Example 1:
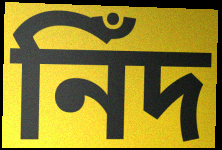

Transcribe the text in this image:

নিঁদ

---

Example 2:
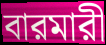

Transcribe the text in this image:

বারমারী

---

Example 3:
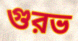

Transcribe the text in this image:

গুরভ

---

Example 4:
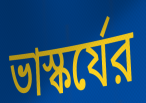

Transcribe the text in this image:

ভাস্কর্যের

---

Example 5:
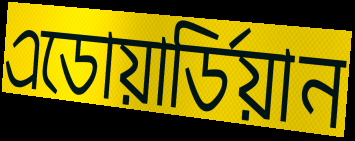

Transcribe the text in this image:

এডোয়ার্ডিয়ান